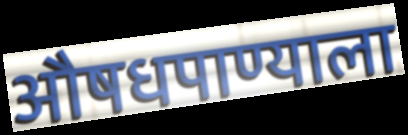
औषधपाण्याला